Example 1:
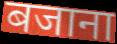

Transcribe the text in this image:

बजाना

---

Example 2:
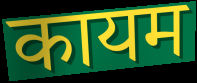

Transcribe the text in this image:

कायम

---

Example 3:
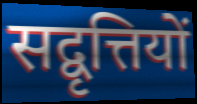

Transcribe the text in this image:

सद्वृत्तियों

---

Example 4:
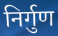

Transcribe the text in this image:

निर्गुण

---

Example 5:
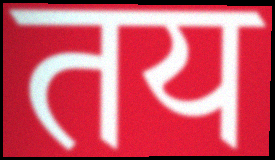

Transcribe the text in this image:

तय